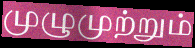
முழுமுற்றும்